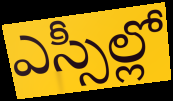
ఎస్సీల్లో